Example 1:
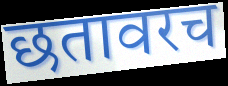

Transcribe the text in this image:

छतावरच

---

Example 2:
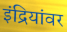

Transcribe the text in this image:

इंद्रियांवर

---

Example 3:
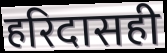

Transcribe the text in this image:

हरिदासही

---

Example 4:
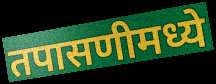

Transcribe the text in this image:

तपासणीमध्ये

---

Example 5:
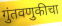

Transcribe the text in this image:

गुंतवणुकीचा